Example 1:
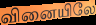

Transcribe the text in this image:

வினையிலே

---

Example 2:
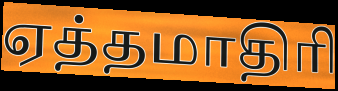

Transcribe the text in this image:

ஏத்தமாதிரி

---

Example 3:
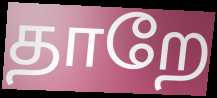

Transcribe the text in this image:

தாறே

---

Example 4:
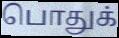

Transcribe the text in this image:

பொதுக்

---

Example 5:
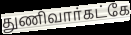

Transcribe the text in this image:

துணிவார்கட்கே